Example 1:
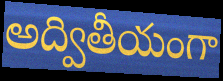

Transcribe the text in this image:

అద్వితీయంగా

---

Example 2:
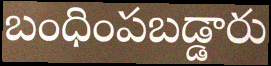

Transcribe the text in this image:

బంధింపబడ్డారు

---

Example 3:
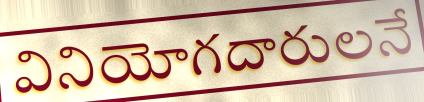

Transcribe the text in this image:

వినియోగదారులనే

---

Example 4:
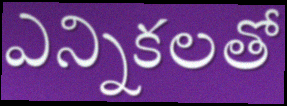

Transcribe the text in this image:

ఎన్నికలతో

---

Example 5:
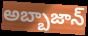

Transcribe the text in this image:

అబ్బాజాన్